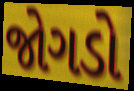
જોગડો